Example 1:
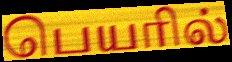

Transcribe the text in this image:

பெயரில்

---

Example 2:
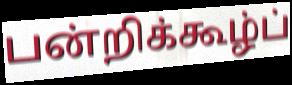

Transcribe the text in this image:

பன்றிக்கூழ்ப்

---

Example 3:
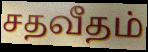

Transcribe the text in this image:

சதவீதம்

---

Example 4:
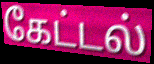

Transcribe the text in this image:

கேட்டல்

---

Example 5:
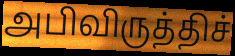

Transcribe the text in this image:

அபிவிருத்திச்